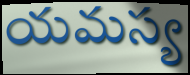
యమస్య